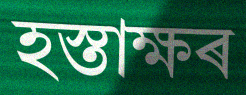
হস্তাক্ষৰ